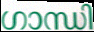
ഗാന്ധി